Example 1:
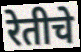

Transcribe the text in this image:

रेतीचे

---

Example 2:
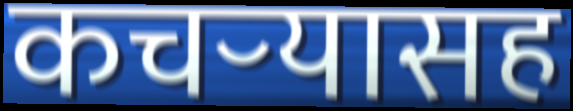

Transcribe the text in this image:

कचऱ्यासह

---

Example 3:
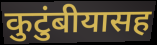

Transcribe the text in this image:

कुटुंबीयासह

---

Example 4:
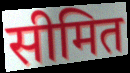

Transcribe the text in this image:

सीमित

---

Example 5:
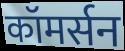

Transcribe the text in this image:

कॉमर्सन